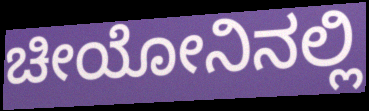
ಚೀಯೋನಿನಲ್ಲಿ